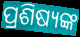
ପ୍ରଶିଷ୍ୟଙ୍କ